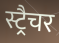
स्ट्रैचर